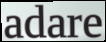
adare